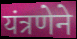
यंत्रणेने